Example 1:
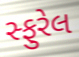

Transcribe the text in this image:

સ્ફુરેલ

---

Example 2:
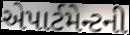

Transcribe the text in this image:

એપાર્ટમેન્ટની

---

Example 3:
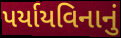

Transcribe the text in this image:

પર્યાયવિનાનું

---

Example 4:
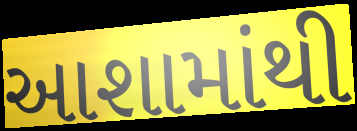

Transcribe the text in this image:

આશામાંથી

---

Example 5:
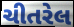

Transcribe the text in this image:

ચીતરેલ